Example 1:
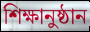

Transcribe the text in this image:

শিক্ষানুষ্ঠান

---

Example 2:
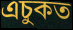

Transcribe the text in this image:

এচুকত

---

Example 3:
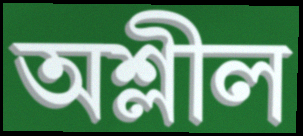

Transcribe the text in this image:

অশ্লীল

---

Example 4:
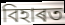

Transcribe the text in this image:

বিহাৰত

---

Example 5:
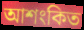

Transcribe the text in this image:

আশংকিত